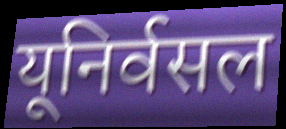
यूनिर्वसल